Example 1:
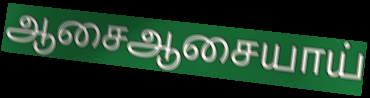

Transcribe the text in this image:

ஆசைஆசையாய்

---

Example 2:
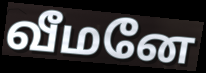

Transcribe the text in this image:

வீமனே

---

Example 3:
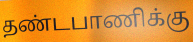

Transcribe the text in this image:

தண்டபாணிக்கு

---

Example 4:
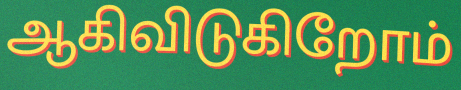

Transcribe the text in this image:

ஆகிவிடுகிறோம்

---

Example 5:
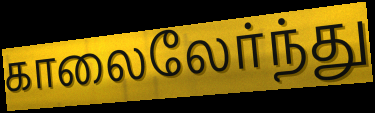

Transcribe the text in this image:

காலைலேர்ந்து